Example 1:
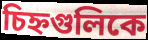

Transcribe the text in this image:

চিহ্নগুলিকে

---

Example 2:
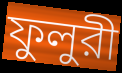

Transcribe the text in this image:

ফুলুরী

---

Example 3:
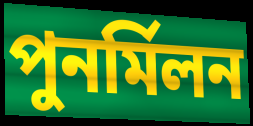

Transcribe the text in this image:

পুনর্মিলন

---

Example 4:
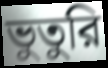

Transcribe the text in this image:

ভুতুরি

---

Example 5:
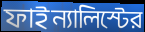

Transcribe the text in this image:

ফাইন্যালিস্টের